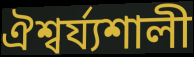
ঐশ্বর্য্যশালী